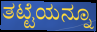
ತಟ್ಟೆಯನ್ನೂ